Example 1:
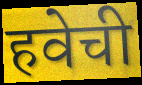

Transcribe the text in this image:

हवेची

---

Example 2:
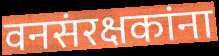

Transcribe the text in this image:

वनसंरक्षकांना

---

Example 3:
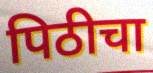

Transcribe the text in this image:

पिठीचा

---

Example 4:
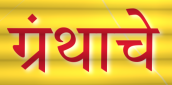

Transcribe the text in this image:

ग्रंथाचे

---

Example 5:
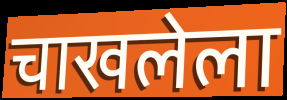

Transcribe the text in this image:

चाखलेला